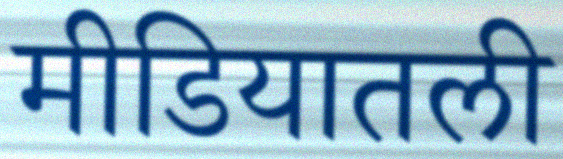
मीडियातली